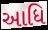
આધિ